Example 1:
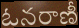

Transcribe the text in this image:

ఓనరాణీ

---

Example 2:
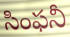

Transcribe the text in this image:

సింఫనీ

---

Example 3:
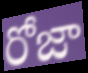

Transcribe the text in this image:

రోజా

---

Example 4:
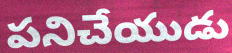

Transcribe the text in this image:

పనిచేయుడు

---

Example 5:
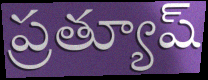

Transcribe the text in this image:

ప్రత్యూష్